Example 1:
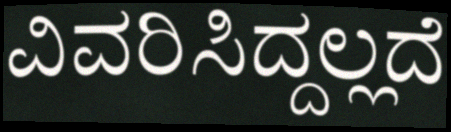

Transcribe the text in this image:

ವಿವರಿಸಿದ್ದಲ್ಲದೆ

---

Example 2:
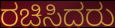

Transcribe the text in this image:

ರಚಿಸಿದರು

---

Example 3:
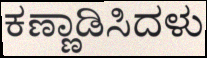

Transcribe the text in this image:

ಕಣ್ಣಾಡಿಸಿದಳು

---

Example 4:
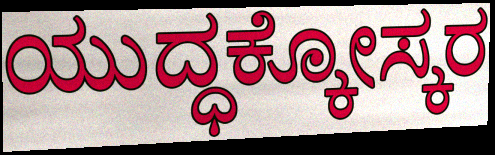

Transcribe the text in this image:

ಯುದ್ಧಕ್ಕೋಸ್ಕರ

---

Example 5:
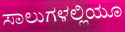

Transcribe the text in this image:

ಸಾಲುಗಳಲ್ಲಿಯೂ